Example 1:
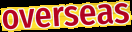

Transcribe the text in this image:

overseas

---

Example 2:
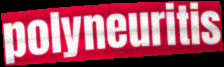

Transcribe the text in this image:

polyneuritis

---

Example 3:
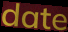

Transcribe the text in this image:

date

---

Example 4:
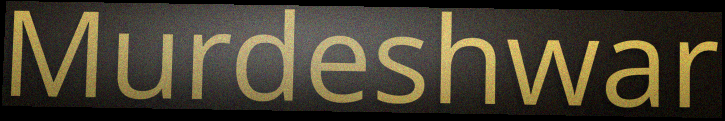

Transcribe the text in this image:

Murdeshwar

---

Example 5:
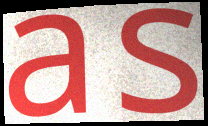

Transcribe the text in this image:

as